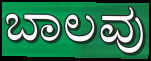
ಬಾಲವು